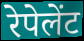
रेपेलेंट